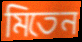
মিতেন